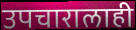
उपचारालाही